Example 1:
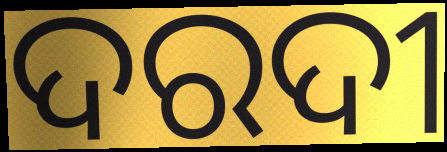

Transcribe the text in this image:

ଦରଦୀ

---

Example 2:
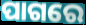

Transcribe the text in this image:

ପାଗରେ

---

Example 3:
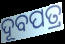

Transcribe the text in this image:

ଦୂବପତ୍ର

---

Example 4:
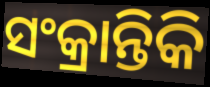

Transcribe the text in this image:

ସଂକ୍ରାନ୍ତିକି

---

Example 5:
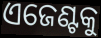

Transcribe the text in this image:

ଏଜେଣ୍ଟକୁ